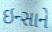
ઇન્સાને